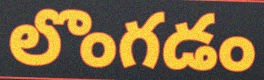
లొంగడం